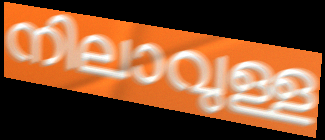
നിലാവുള്ള